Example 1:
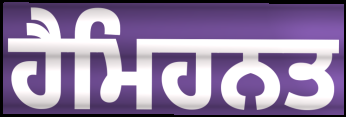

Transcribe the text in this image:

ਹੈਮਿਹਨਤ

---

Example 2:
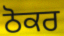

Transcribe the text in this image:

ਠੋਕਰ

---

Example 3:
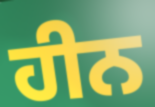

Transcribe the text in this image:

ਹੀਨ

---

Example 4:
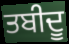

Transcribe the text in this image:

ਤਬੀਦੂ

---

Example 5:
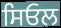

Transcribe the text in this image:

ਸਿਓਲ